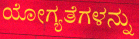
ಯೋಗ್ಯತೆಗಳನ್ನು